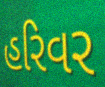
હરિવર